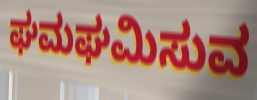
ಘಮಘಮಿಸುವ